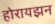
होरायझन